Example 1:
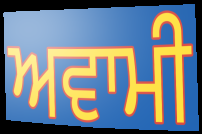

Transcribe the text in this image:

ਅਵਾਮੀ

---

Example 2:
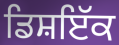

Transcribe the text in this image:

ਡਿਸ਼ਇੱਕ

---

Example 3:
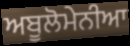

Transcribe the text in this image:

ਅਬੂਲੋਮੇਨੀਆ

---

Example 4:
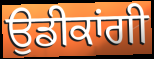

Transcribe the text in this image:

ਉਡੀਕਾਂਗੀ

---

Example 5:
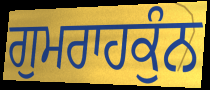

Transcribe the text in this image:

ਗੁਮਰਾਹਕੁੰਨ